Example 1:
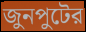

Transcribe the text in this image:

জুনপুটের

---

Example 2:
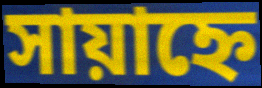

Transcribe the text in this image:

সায়াহ্নে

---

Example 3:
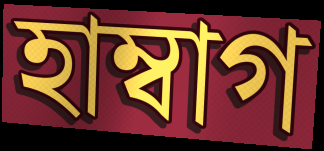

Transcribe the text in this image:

হাম্বাগ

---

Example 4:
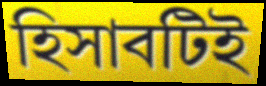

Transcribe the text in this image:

হিসাবটিই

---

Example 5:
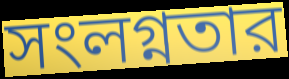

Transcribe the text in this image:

সংলগ্নতার